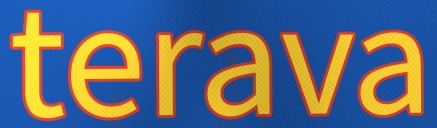
terava